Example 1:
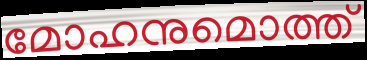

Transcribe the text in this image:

മോഹനുമൊത്ത്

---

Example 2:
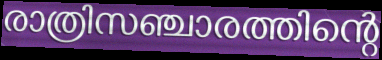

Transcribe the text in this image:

രാത്രിസഞ്ചാരത്തിന്റെ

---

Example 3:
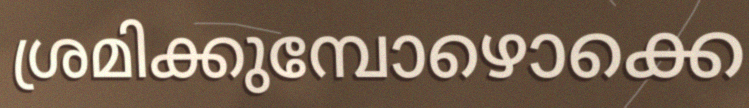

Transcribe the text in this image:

ശ്രമിക്കുമ്പോഴൊക്കെ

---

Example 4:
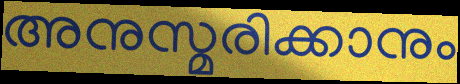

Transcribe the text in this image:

അനുസ്മരിക്കാനും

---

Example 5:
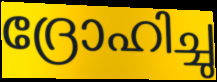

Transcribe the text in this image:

ദ്രോഹിച്ചു